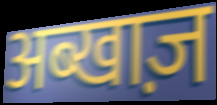
अब्खाज़